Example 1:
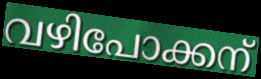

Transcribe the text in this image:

വഴിപോക്കന്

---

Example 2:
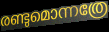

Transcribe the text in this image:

രണ്ടുമൊന്നത്രേ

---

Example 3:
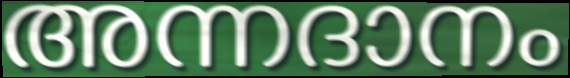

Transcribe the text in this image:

അന്നദാനം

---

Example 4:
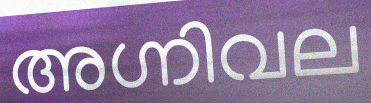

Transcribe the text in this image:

അഗ്നിവല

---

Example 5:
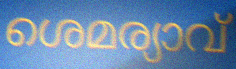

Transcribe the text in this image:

ശെമര്യാവ്